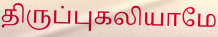
திருப்புகலியாமே